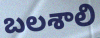
బలశాలి